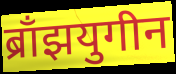
ब्राँझयुगीन